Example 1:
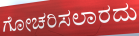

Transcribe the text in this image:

ಗೋಚರಿಸಲಾರದು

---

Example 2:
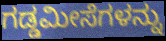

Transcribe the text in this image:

ಗಡ್ಡಮೀಸೆಗಳನ್ನು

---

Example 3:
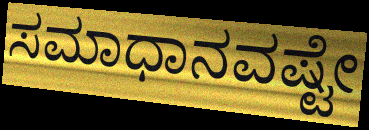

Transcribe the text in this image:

ಸಮಾಧಾನವಷ್ಟೇ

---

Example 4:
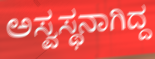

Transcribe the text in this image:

ಅಸ್ವಸ್ಥನಾಗಿದ್ದ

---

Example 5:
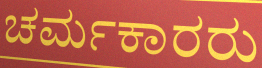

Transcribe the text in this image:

ಚರ್ಮಕಾರರು